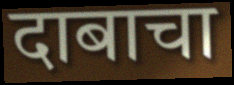
दाबाचा